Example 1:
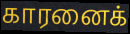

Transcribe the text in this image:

காரனைக்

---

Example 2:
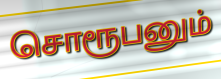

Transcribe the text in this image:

சொரூபனும்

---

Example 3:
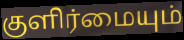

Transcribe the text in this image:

குளிர்மையும்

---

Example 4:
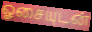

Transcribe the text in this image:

ஓசையுடன்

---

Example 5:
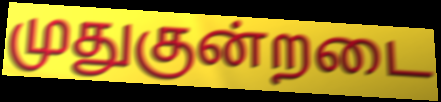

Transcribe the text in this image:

முதுகுன்றடை